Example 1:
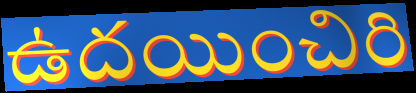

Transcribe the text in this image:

ఉదయించిరి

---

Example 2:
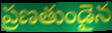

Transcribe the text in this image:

ప్రణతుండైన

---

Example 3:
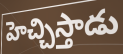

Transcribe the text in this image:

హెచ్చిస్తాడు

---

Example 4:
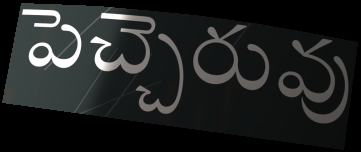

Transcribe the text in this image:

పెచ్చెరువు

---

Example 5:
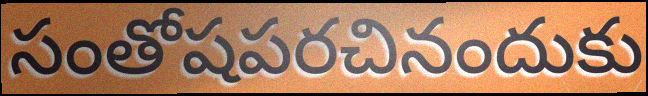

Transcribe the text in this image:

సంతోషపరచినందుకు